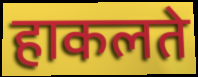
हाकलते